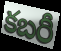
కబరీ